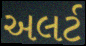
અલર્ટ